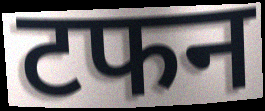
टफन